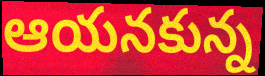
ఆయనకున్న